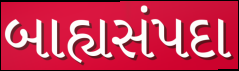
બાહ્યસંપદા